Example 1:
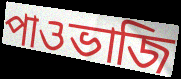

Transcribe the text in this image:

পাওভাজি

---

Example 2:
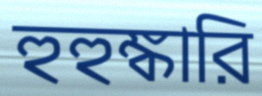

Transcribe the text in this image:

হুহুঙ্কারি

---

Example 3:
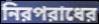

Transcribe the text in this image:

নিরপরাধের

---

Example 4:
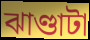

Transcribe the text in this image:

ঝাণ্ডাটা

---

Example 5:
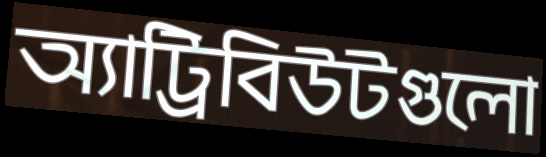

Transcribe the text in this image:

অ্যাট্রিবিউটগুলো